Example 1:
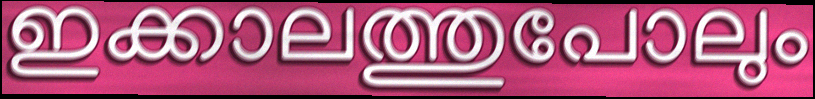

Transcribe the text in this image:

ഇക്കാലത്തുപോലും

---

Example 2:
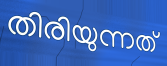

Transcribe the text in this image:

തിരിയുന്നത്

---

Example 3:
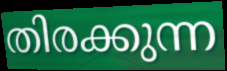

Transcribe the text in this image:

തിരക്കുന്ന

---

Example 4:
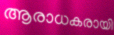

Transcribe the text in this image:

ആരാധകരായി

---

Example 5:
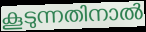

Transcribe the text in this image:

കൂടുന്നതിനാൽ